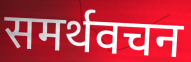
समर्थवचन